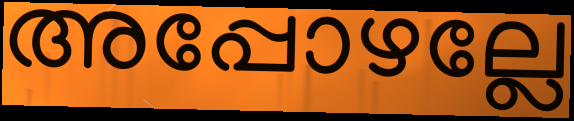
അപ്പോഴല്ലേ